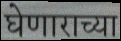
घेणाराच्या